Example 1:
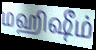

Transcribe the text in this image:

மஹிஷீம்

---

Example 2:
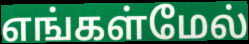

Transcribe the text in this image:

எங்கள்மேல்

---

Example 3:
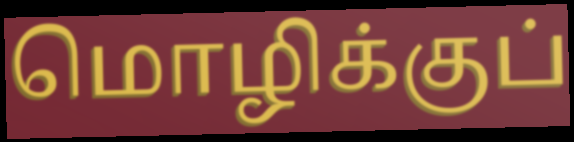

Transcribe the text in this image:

மொழிக்குப்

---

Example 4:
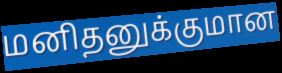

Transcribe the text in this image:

மனிதனுக்குமான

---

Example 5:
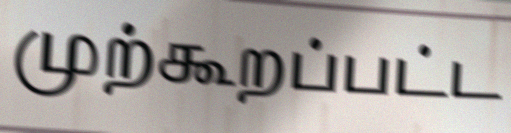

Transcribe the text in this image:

முற்கூறப்பட்ட